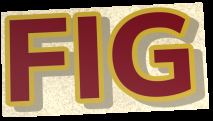
FIG